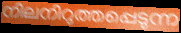
നിലനിറുത്തപ്പെടുന്ന